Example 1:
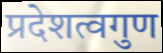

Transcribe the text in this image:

प्रदेशत्वगुण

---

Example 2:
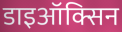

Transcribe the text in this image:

डाइऑक्सिन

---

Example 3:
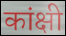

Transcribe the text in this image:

कांक्षी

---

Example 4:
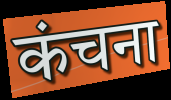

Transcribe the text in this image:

कंचना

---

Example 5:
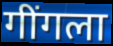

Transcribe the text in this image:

गींगला